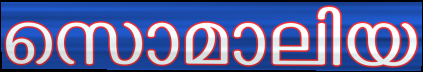
സൊമാലിയ